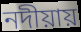
নদীয়ায়